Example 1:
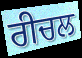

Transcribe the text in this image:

ਰੀਚਲ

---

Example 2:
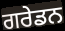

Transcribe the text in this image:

ਗਰੇਡਨ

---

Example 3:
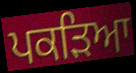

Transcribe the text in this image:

ਪਕੜਿਆ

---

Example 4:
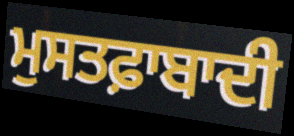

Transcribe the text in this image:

ਮੁਸਤਫ਼ਾਬਾਦੀ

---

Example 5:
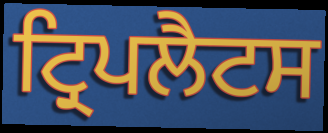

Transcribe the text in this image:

ਟ੍ਰਿਪਲੈਟਸ